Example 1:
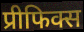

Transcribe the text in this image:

प्रीफिक्स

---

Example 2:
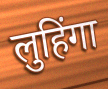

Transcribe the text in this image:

लुहिंगा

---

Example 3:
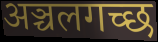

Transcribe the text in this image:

अञ्चलगच्छ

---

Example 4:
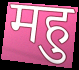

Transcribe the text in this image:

महु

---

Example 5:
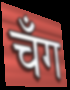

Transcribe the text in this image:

चँग